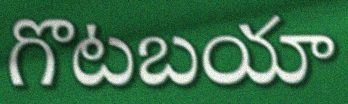
గొటబయా